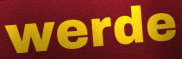
werde